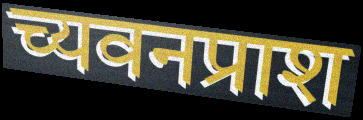
च्यवनप्राश